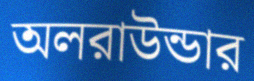
অলরাউন্ডার